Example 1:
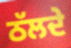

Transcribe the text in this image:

ਠੱਲਦੇ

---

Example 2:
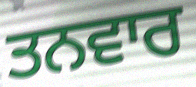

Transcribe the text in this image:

ਤਨਵਾਰ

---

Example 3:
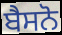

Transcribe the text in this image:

ਬੈਸਨੋ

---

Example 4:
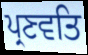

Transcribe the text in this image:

ਪ੍ਰਣਵਤਿ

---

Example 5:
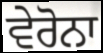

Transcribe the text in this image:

ਵੇਰੋਨਾ